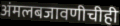
अंमलबजावणीचीही